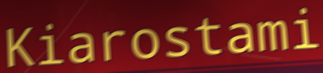
Kiarostami